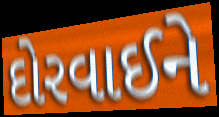
દોરવાઈને